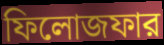
ফিলোজফার